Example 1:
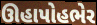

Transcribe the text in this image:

ઊહાપોહભેર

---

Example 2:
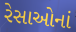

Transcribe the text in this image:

રેસાઓનાં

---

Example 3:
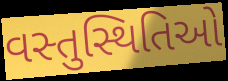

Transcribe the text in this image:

વસ્તુસ્થિતિઓ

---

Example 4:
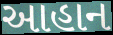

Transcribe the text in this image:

આહાન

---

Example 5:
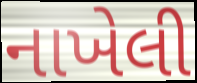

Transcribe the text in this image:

નાખેલી